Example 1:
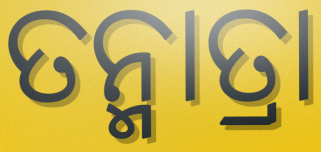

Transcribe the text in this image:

ତନ୍ମାତ୍ରା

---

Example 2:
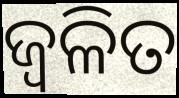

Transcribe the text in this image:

ଜ୍ୱଳିତ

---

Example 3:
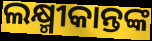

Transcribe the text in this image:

ଲକ୍ଷ୍ମୀକାନ୍ତଙ୍କ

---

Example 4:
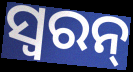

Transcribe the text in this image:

ସ୍ୱରନ୍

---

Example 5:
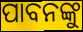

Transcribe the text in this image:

ପାବନଙ୍କୁ